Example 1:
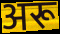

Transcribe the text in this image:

अरू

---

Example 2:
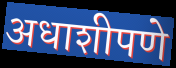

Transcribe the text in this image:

अधाशीपणे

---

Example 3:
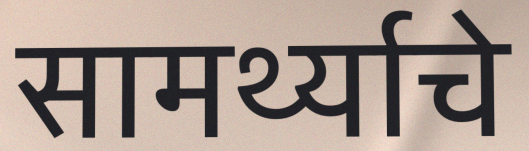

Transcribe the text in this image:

सामर्थ्याचे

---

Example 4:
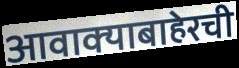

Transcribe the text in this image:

आवाक्याबाहेरची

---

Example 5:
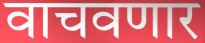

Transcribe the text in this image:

वाचवणार